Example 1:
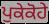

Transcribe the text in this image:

ਪੁਕੇਕੋਹੇ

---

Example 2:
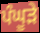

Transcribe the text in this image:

ਪੰਘੂੜੇ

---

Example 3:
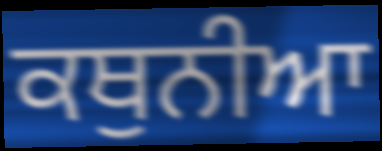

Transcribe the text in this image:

ਕਥੁਨੀਆ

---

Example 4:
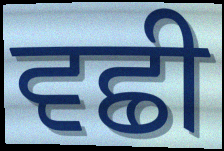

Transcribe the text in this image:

ਵਛੀ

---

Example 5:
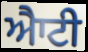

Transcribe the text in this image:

ਐਾਟੀ